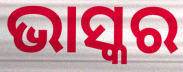
ଭାସ୍କର